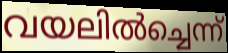
വയലിൽച്ചെന്ന്